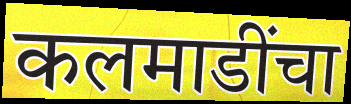
कलमाडींचा